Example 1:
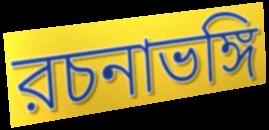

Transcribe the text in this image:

রচনাভঙ্গি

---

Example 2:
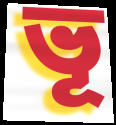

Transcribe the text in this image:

ভূ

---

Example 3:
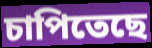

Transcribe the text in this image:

চাপিতেছে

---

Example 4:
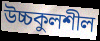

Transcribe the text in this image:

উচ্চকুলশীল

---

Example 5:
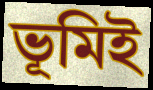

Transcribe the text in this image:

ভূমিই